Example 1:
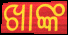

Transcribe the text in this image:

ଖାଙ୍କ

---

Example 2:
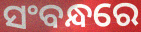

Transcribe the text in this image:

ସଂବନ୍ଧରେ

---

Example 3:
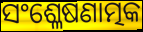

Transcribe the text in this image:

ସଂଶ୍ଳେଷଣାତ୍ମକ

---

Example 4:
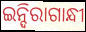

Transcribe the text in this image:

ଇନ୍ଦିରାଗାନ୍ଧୀ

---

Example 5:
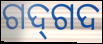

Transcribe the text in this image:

ଗଦ୍‌ଗଦ